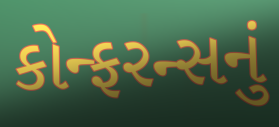
કોન્ફરન્સનું